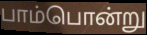
பாம்பொன்று